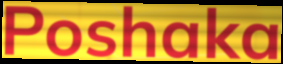
Poshaka